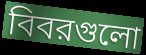
বিবরগুলো